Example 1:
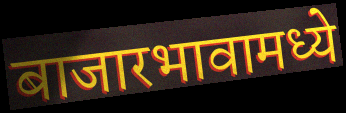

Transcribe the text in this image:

बाजारभावामध्ये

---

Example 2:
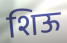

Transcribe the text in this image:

शिऊ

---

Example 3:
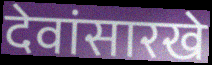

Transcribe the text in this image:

देवांसारखे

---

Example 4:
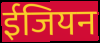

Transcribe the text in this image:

ईजियन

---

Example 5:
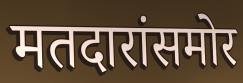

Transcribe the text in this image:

मतदारांसमोर